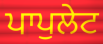
ਪਾਪੁਲੇਟ